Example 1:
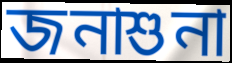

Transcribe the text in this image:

জনাশুনা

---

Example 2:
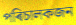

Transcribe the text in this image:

পৰিচালকজন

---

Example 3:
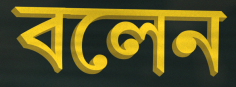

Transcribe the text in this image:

বলেন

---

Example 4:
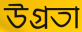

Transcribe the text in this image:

উগ্ৰতা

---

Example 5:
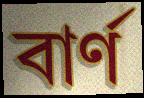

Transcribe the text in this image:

বাৰ্ণ